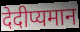
देदीप्यमान